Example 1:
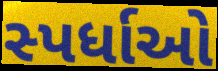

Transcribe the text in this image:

સ્પર્ધાઓ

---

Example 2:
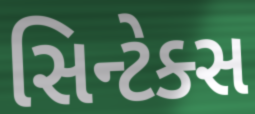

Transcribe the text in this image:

સિન્ટેક્સ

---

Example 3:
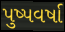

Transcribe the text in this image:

પુષ્પવર્ષા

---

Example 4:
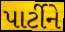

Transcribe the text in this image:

પાર્ટીને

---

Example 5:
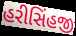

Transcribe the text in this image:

હરીસિંહજી